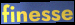
finesse